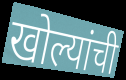
खोल्यांची